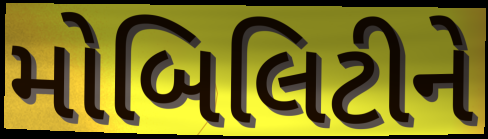
મોબિલિટીને